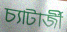
চ্যাটার্জী